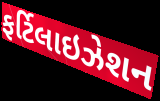
ફર્ટિલાઇઝેશન